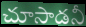
చూసాడనీ